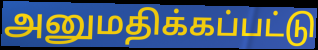
அனுமதிக்கப்பட்டு